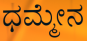
ಧಮ್ಮೇನ